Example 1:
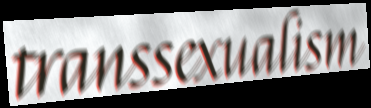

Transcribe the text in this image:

transsexualism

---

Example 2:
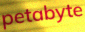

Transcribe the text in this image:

petabyte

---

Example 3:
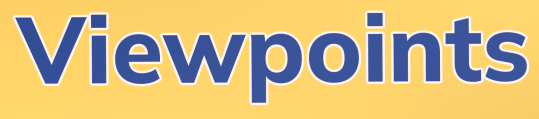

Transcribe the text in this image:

Viewpoints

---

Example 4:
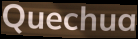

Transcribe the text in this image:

Quechua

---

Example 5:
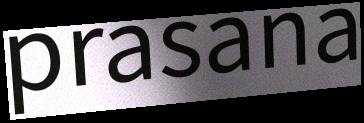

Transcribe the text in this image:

prasana